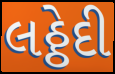
લઠ્ઠેદી